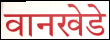
वानखेडे